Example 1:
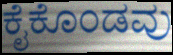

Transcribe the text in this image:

ಕೈಕೊಂಡವು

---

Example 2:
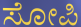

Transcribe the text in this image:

ಸೋಪಿ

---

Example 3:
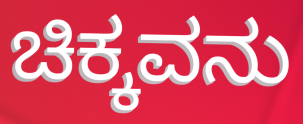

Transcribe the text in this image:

ಚಿಕ್ಕವನು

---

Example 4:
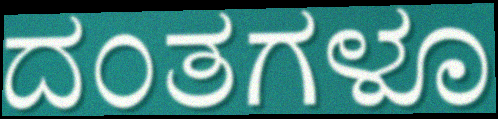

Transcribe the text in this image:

ದಂತಗಳೂ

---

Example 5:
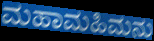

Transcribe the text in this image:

ಮಹಾಮಹಿಮನು